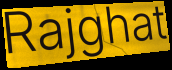
Rajghat